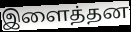
இளைத்தன